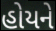
હોયને